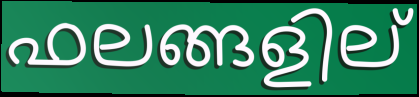
ഫലങ്ങളില്